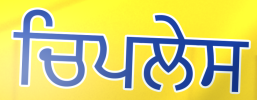
ਚਿਪਲੇਸ